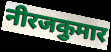
नीरजकुमार